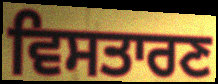
ਵਿਸਤਾਰਣ